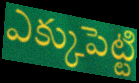
ఎక్కుపెట్టి